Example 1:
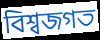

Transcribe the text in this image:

বিশ্বজগত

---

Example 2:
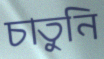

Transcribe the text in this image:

চাতুনি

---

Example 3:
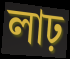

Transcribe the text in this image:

লাঢ়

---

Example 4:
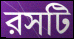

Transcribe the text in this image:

রসটি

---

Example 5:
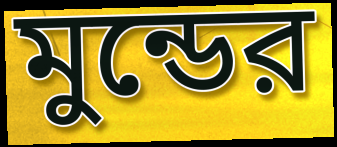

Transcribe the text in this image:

মুন্ডের